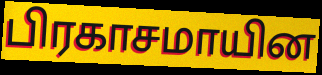
பிரகாசமாயின